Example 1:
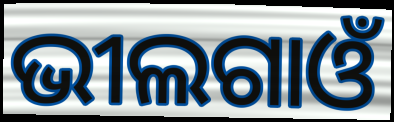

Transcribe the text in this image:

ଭୀଲଗାଓଁ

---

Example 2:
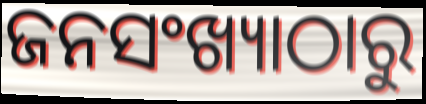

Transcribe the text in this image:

ଜନସଂଖ୍ୟାଠାରୁ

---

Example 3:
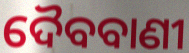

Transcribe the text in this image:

ଦୈବବାଣୀ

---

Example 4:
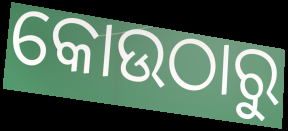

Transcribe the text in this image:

କୋଉଠାରୁ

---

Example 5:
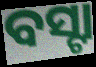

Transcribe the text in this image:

ବସ୍ଟା